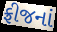
ફ્રીજનાં